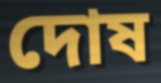
দোষ